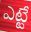
ఎట్టే